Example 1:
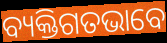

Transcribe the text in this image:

ବ୍ୟକ୍ତିଗତଭାବେ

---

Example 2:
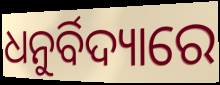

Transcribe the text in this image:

ଧନୁର୍ବିଦ୍ୟାରେ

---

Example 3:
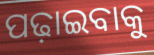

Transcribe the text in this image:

ପଢ଼ାଇବାକୁ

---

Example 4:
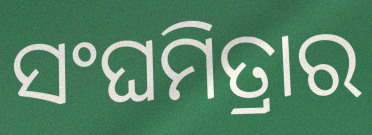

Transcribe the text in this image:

ସଂଘମିତ୍ରାର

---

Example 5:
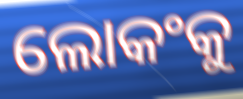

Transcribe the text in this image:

ଲୋକଂକୁ